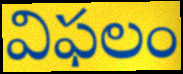
విఫలం